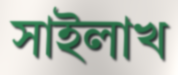
সাইলাখ